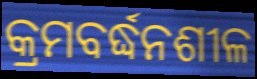
କ୍ରମବର୍ଦ୍ଧନଶୀଳ